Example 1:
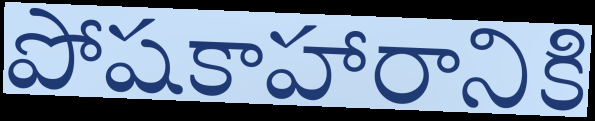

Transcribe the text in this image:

పోషకాహారానికి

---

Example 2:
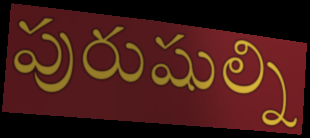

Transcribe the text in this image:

పురుషుల్ని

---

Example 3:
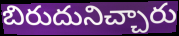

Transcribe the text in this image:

బిరుదునిచ్చారు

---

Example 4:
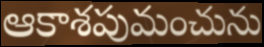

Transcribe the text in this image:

ఆకాశపుమంచును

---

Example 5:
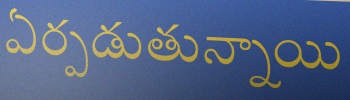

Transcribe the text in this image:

ఏర్పడుతున్నాయి